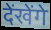
देंखेंगे